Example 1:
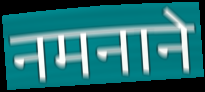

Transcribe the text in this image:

नमनाने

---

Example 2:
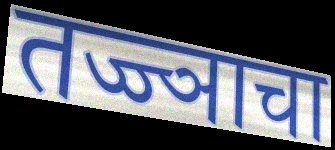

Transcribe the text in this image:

तज्ज्ञाचा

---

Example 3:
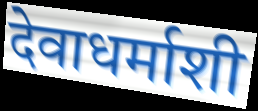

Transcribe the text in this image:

देवाधर्माशी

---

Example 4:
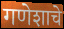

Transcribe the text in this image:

गणेशाचे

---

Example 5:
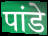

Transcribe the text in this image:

पांडे